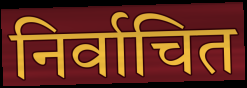
निर्वाचित